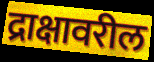
द्राक्षावरील